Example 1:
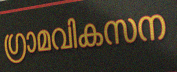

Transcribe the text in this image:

ഗ്രാമവികസന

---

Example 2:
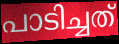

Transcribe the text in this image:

പാടിച്ചത്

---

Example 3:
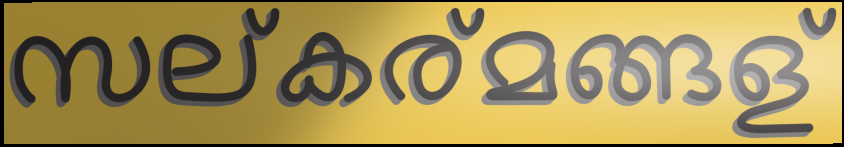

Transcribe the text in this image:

സല്കര്മങ്ങള്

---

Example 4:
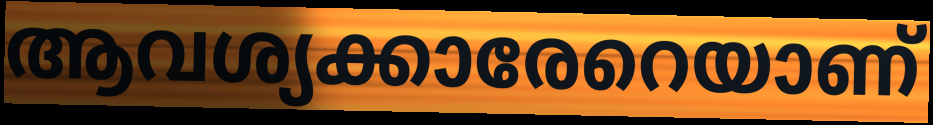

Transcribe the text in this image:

ആവശ്യക്കാരേറെയാണ്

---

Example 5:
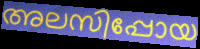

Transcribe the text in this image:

അലസിപ്പോയ